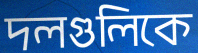
দলগুলিকে